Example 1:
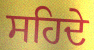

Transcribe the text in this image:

ਸਹਿਦੇ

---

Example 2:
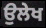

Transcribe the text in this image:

ਉਲੇਖ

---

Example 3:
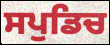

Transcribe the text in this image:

ਸਪੁਡਿਚ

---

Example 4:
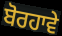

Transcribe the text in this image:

ਬੋਰਹਾਵੇ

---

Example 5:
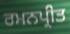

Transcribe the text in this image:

ਰਮਨਪ੍ਰੀਤ